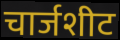
चार्जशीट